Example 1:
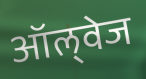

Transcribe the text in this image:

ऑल्वेज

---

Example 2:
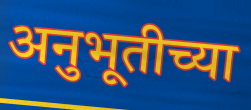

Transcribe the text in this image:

अनुभूतीच्या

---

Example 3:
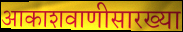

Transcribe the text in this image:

आकाशवाणीसारख्या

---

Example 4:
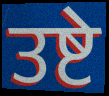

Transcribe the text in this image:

उष्टे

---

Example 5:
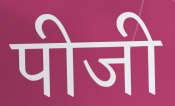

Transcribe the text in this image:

पीजी